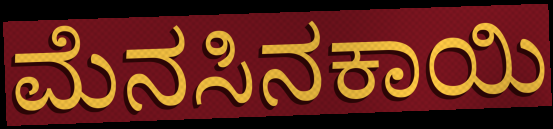
ಮೆನಸಿನಕಾಯಿ